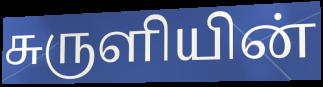
சுருளியின்